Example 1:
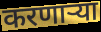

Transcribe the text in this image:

करणार्‍या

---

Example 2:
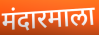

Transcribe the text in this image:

मंदारमाला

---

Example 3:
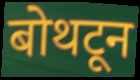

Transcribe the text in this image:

बोथटून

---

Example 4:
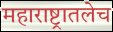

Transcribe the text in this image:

महाराष्ट्रातलेच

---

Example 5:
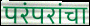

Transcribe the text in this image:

परंपरांचा